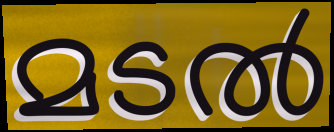
മടൽ